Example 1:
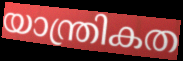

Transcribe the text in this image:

യാന്ത്രികത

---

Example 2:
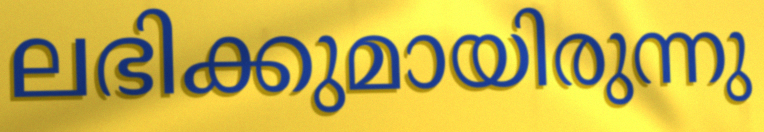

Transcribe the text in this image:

ലഭിക്കുമായിരുന്നു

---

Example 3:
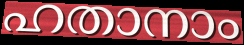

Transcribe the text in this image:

ഹതാനാം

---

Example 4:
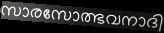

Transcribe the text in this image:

സാരസോത്ഭവനാദി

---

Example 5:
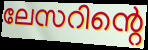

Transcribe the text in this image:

ലേസറിന്റെ